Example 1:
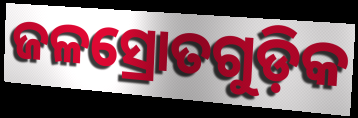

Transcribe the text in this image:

ଜଳସ୍ରୋତଗୁଡ଼ିକ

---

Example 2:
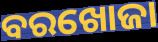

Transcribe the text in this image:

ବରଖୋଜା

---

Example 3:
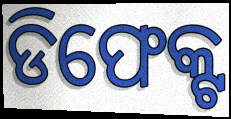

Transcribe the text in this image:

ଡିଫେକ୍ଟ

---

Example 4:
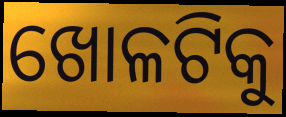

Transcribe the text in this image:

ଖୋଳଟିକୁ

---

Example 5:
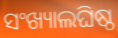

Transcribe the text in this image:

ସଂଖ୍ୟାଲଘିଷ୍ଠ